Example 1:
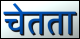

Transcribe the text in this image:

चेतता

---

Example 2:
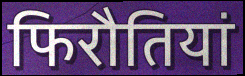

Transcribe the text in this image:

फिरौतियां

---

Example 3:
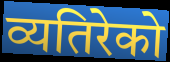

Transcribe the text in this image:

व्यतिरेको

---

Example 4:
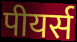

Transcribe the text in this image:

पीयर्स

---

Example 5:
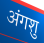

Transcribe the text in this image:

अंगशु